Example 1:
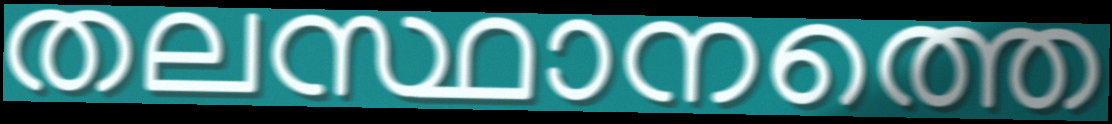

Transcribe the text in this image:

തലസ്ഥാനത്തെ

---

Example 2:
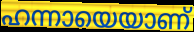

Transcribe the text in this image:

ഹന്നായെയാണ്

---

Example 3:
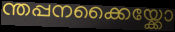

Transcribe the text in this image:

ന്തപ്പനക്കൈയ്ക്കോ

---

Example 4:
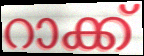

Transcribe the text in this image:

റാക്ക്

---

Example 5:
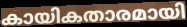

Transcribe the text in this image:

കായികതാരമായി